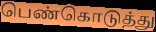
பெண்கொடுத்து